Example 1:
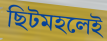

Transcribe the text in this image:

ছিটমহলেই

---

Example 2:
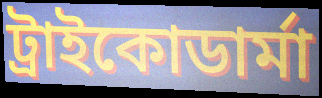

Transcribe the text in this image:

ট্রাইকোডার্মা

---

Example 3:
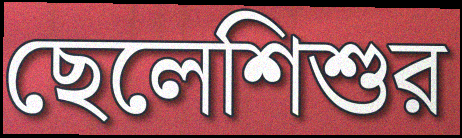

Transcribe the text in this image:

ছেলেশিশুর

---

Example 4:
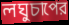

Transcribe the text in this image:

লঘুচাপের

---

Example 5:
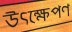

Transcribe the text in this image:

উৎক্ষেপণ